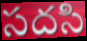
సదసి